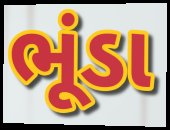
ભૂંડા